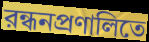
রন্ধনপ্রণালিতে